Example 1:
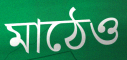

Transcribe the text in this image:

মাঠেও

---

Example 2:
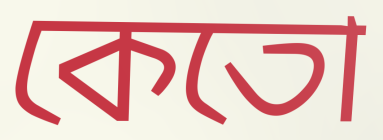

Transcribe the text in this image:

কেতো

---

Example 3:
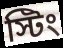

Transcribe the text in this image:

স্টিং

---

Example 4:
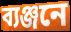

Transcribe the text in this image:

ব্যঞ্জনে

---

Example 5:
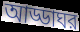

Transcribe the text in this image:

আড্ডাঘর